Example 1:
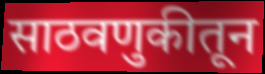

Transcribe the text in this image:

साठवणुकीतून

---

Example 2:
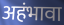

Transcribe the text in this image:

अहंभावा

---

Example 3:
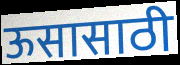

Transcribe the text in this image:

ऊसासाठी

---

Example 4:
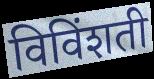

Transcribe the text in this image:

विविंशती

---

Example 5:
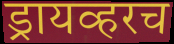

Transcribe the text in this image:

ड्रायव्हरच